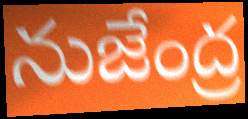
నుజేంద్ర